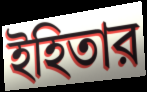
ইহিতার